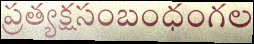
ప్రత్యక్షసంబంధంగల